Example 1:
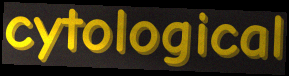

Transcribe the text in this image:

cytological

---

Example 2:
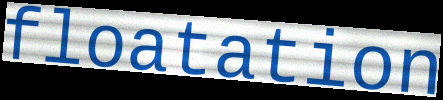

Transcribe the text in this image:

floatation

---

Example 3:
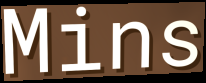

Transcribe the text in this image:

Mins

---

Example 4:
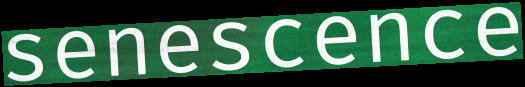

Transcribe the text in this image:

senescence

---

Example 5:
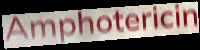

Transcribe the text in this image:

Amphotericin